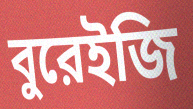
বুরেইজি